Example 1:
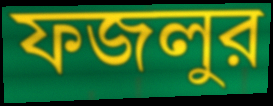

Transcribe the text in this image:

ফজলুর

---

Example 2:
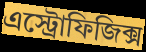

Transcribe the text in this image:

এস্ট্রোফিজিক্স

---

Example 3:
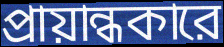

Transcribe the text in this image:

প্রায়ান্ধকারে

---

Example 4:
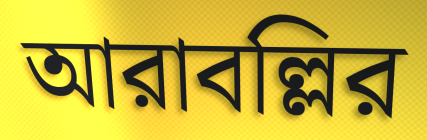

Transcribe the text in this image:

আরাবল্লির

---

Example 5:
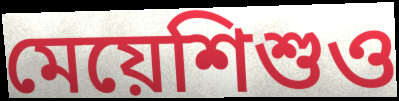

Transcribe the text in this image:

মেয়েশিশুও